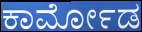
ಕಾರ್ಮೋಡ